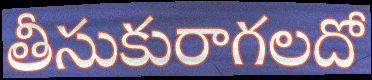
తీసుకురాగలదో